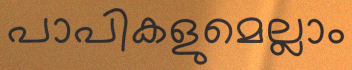
പാപികളുമെല്ലാം